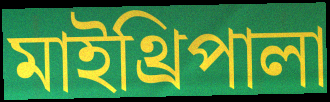
মাইথ্রিপালা